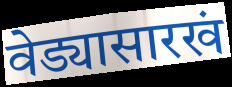
वेड्यासारखं